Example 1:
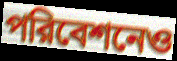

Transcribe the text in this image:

পরিবেশনেও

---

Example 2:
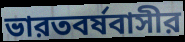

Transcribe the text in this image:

ভারতবর্ষবাসীর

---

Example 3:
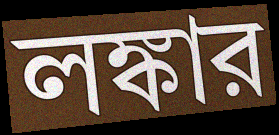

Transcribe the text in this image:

লঙ্কার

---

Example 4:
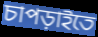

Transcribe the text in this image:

চাপড়াইতে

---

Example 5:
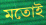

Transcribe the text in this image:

মতোই